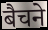
बैचने